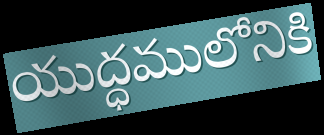
యుద్ధములోనికి